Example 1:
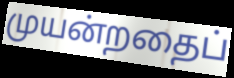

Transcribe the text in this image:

முயன்றதைப்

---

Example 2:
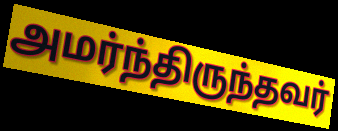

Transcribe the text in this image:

அமர்ந்திருந்தவர்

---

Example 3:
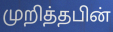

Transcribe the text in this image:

முறித்தபின்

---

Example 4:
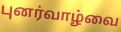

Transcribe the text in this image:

புனர்வாழ்வை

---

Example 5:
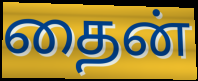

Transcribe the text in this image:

தைன்